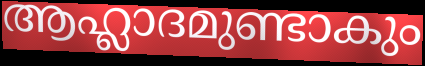
ആഹ്ലാദമുണ്ടാകും